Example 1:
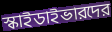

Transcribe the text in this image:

স্কাইডাইভারদের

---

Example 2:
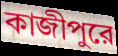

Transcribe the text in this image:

কাজীপুরে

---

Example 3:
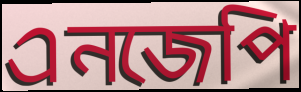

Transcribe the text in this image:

এনজেপি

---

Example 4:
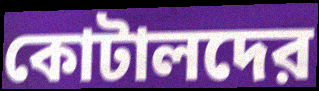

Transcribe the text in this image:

কোটালদের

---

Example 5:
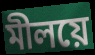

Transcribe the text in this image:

মীলয়ে